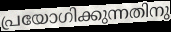
പ്രയോഗിക്കുന്നതിനു